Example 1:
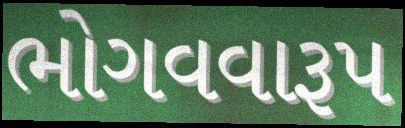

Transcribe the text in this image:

ભોગવવારૂપ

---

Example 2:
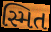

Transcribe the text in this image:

સ્મિત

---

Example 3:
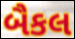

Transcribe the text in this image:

બૈકલ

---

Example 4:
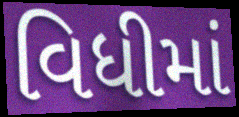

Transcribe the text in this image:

વિધીમાં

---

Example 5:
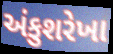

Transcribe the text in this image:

અંકુશરેખા